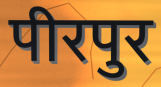
पीरपुर